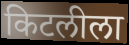
किटलीला